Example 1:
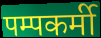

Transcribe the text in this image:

पम्पकर्मी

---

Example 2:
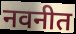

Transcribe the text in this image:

नवनीत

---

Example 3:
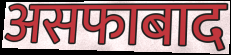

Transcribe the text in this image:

असफाबाद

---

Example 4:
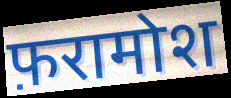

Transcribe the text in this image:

फ़रामोश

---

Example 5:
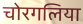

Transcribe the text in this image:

चोरगलिया